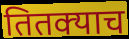
तितक्‍याच